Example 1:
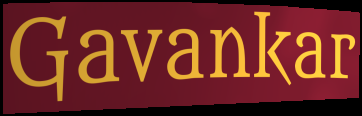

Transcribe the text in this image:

Gavankar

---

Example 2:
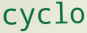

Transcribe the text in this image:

cyclo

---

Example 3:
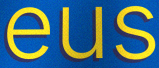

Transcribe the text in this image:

eus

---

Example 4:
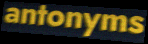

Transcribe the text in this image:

antonyms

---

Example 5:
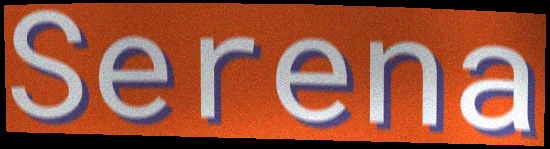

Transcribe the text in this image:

Serena